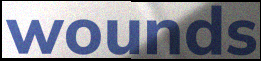
wounds